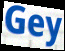
Gey